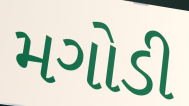
મગોડી